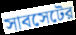
সাবসেটের